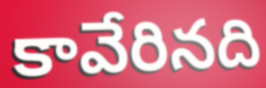
కావేరినది